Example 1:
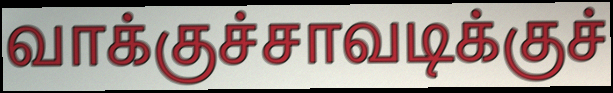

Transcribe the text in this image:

வாக்குச்சாவடிக்குச்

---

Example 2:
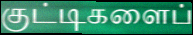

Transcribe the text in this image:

குட்டிகளைப்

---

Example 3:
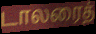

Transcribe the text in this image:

டாலரைத்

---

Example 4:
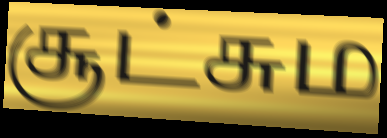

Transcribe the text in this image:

சூட்சும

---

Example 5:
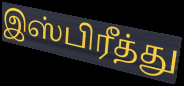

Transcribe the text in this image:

இஸ்பிரீத்து